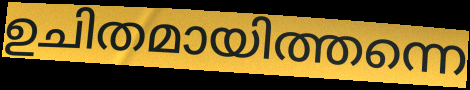
ഉചിതമായിത്തന്നെ